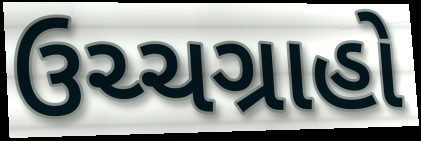
ઉચ્ચગ્રાહો